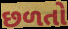
છળતો